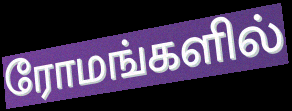
ரோமங்களில்